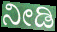
ನೀಡಿ